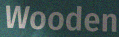
Wooden